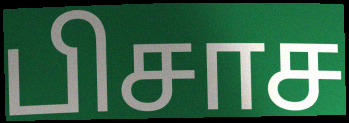
பிசாச